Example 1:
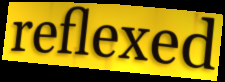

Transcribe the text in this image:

reflexed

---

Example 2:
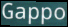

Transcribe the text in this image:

Gappo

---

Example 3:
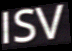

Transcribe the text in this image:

ISV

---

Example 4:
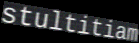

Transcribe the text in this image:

stultitiam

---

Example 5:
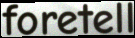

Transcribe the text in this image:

foretell